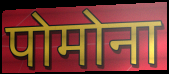
पोमोना